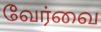
வேர்வை